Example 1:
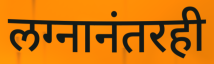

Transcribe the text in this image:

लग्नानंतरही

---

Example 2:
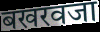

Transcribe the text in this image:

बखरवजा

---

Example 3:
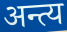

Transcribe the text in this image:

अन्त्य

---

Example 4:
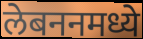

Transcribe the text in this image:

लेबननमध्ये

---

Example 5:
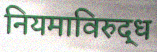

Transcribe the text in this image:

नियमाविरुद्ध